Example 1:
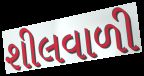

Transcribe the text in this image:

શીલવાળી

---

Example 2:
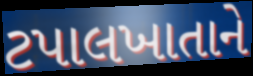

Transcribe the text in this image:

ટપાલખાતાને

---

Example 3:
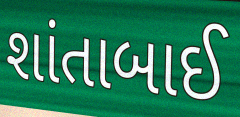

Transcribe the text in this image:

શાંતાબાઈ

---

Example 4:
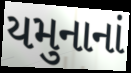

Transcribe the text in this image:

યમુનાનાં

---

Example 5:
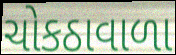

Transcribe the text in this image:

ચોકઠાવાળા